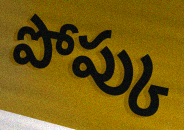
పోప్కు